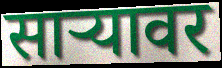
साऱ्यावर